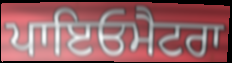
ਪਾਇਓਮੈਟਰਾ